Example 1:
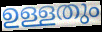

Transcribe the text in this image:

ഉള്ളതും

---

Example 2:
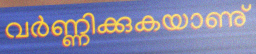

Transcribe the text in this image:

വർണ്ണിക്കുകയാണു്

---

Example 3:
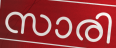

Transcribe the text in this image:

സാരി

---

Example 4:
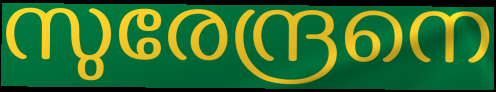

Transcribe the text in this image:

സുരേന്ദ്രനെ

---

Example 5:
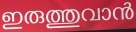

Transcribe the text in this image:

ഇരുത്തുവാൻ